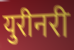
युरीनरी